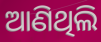
ଆଣିଥିଲି